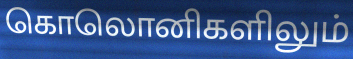
கொலொனிகளிலும்